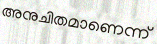
അനുചിതമാണെന്ന്